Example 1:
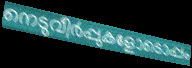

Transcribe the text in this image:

നെടുവീർപ്പുകളോടൊപ്പം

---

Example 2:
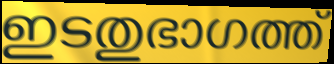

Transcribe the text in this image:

ഇടതുഭാഗത്ത്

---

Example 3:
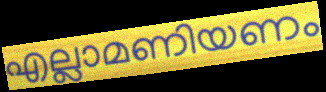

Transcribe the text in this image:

എല്ലാമണിയണം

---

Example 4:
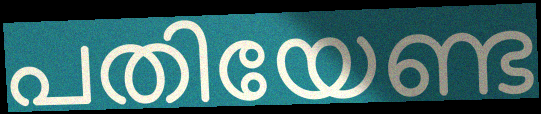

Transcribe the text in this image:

പതിയേണ്ട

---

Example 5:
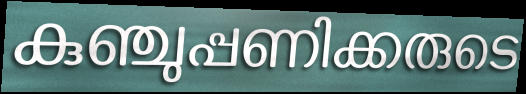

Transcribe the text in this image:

കുഞ്ചുപ്പണിക്കരുടെ